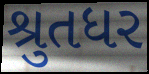
શ્રુતધર